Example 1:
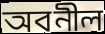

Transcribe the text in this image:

অবনীল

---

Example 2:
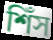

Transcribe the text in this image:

শিঁস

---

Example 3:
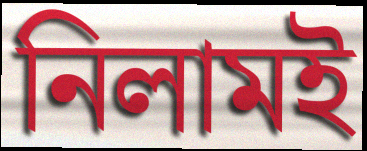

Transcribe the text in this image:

নিলামই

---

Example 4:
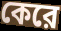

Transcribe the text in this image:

কেরে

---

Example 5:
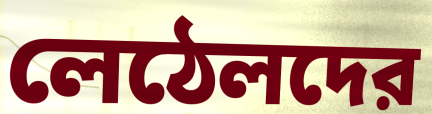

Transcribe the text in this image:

লেঠেলদের